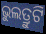
ଭୁଲତ୍ରୁଟି